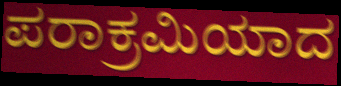
ಪರಾಕ್ರಮಿಯಾದ